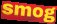
smog